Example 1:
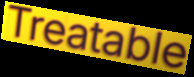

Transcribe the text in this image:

Treatable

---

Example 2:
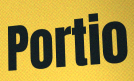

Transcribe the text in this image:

Portio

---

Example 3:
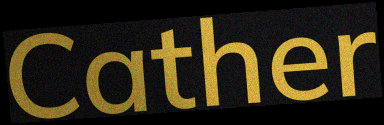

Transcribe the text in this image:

Cather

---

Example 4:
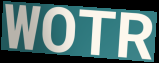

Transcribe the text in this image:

WOTR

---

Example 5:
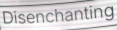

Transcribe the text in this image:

Disenchanting